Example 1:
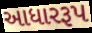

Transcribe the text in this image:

આધારરૂપ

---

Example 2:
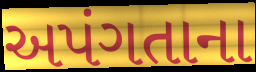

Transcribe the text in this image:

અપંગતાના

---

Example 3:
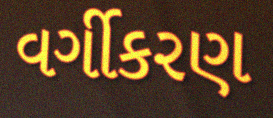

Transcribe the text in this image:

વર્ગીકરણ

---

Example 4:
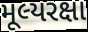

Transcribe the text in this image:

મૂલ્યરક્ષા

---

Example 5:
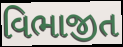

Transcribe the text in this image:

વિભાજીત